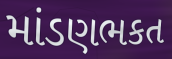
માંડણભકત